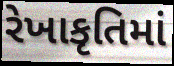
રેખાકૃતિમાં